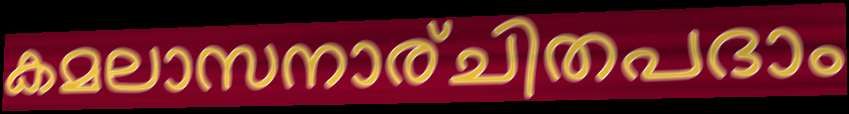
കമലാസനാര്ചിതപദാം